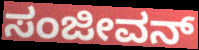
ಸಂಜೀವನ್